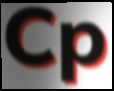
Cp